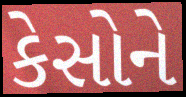
કેસોને